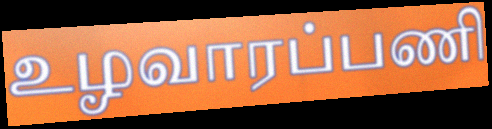
உழவாரப்பணி